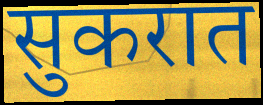
सुकरात